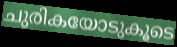
ചുരികയോടുകൂടെ